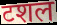
टशल